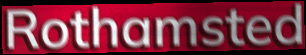
Rothamsted